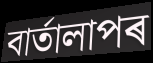
বাৰ্তালাপৰ